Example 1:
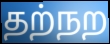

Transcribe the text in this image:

தற்நற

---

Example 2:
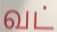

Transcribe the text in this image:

வட்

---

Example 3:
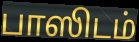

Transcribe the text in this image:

பாஸிடம்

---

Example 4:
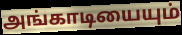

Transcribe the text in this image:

அங்காடியையும்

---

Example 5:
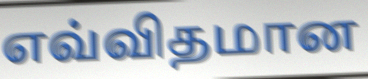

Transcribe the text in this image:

எவ்விதமான